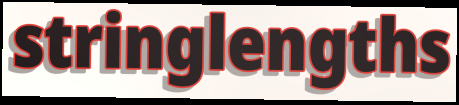
stringlengths